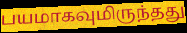
பயமாகவுமிருந்தது